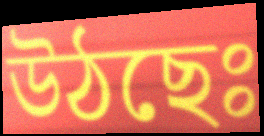
উঠছেঃ